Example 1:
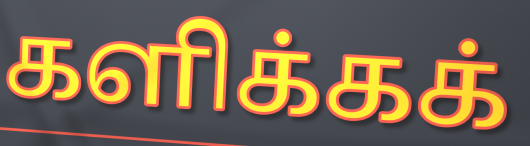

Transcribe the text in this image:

களிக்கக்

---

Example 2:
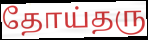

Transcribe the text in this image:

தோய்தரு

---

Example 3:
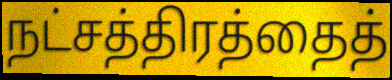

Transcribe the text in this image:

நட்சத்திரத்தைத்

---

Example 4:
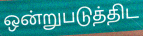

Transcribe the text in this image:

ஒன்றுபடுத்திட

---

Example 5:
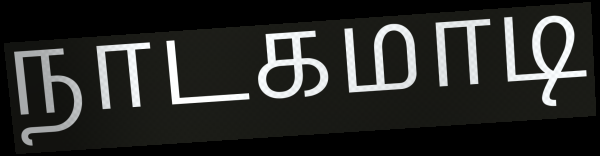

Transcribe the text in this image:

நாடகமாடி